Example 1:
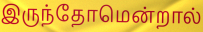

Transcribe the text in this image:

இருந்தோமென்றால்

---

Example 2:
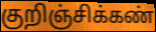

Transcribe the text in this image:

குறிஞ்சிக்கண்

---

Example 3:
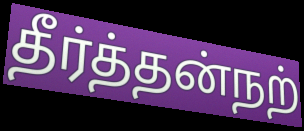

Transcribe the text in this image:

தீர்த்தன்நற்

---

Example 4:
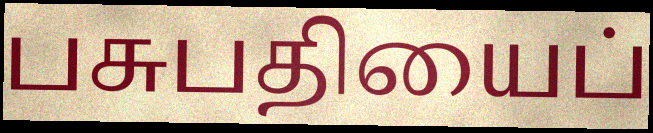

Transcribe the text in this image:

பசுபதியைப்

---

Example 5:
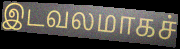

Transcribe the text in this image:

இடவலமாகச்